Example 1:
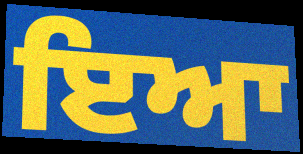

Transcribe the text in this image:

ਇਆ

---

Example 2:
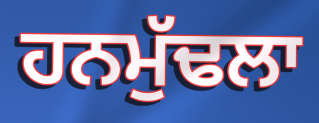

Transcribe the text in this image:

ਹਨਮੁੱਢਲਾ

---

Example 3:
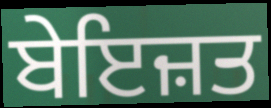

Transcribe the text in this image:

ਬੇਇਜ਼ਤ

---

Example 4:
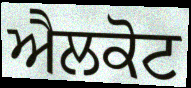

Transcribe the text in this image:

ਐਲਕੋਟ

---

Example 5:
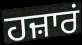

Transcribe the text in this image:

ਹਜ਼ਾਰਂ